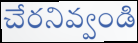
చేరనివ్వండి